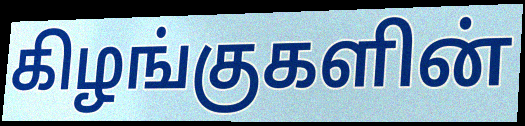
கிழங்குகளின்